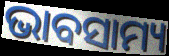
ଭାବସାମ୍ୟ